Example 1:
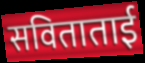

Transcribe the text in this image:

सविताताई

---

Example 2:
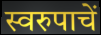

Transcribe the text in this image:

स्वरुपाचें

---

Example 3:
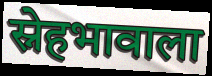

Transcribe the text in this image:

स्नेहभावाला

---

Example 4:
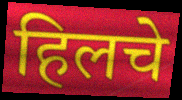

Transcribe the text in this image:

हिलचे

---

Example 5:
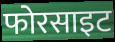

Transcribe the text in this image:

फोरसाइट